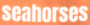
seahorses